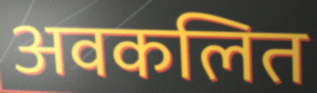
अवकलित